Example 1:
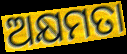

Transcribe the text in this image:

ଅକ୍ଷମତା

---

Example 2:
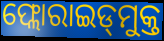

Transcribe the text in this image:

ଫ୍ଲୋରାଇଡ୍‌ମୁକ୍ତ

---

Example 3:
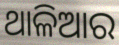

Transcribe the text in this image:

ଥାଳିଆର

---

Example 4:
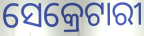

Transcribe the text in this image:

ସେକ୍ରେଟାରୀ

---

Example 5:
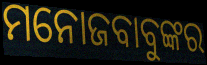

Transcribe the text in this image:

ମନୋଜବାବୁଙ୍କର